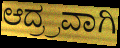
ಆದ್ರ್ರವಾಗಿ